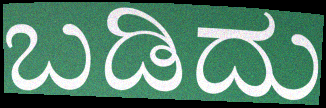
ಬಡಿದು